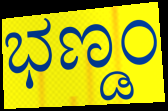
ಭಣ್ಡಂ